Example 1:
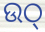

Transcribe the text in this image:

ଉଠ୍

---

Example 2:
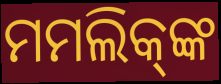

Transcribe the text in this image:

ମମଲିକ୍‌ଙ୍କ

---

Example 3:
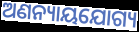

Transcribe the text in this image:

ଅଣନ୍ୟାୟଯୋଗ୍ୟ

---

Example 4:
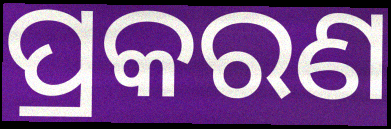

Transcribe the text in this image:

ପ୍ରକରଣ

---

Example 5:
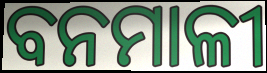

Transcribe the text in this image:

ବନମାଳୀ